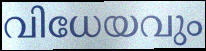
വിധേയവും